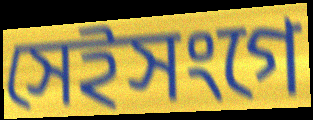
সেইসংগে